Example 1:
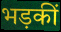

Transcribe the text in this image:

भड़कीं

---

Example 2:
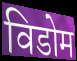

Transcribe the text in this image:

विडोम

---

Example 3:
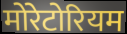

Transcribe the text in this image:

मोरेटोरियम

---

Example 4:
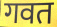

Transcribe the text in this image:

गवत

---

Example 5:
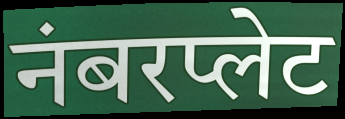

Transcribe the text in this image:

नंबरप्लेट